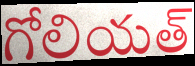
గోలియత్